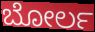
ಬೋರ್ಲ